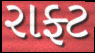
રાફ્ટ